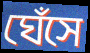
ঘেঁসে